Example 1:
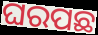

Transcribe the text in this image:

ଘରପଛ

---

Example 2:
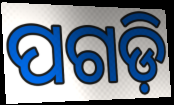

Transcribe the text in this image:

ପଗଡ଼ି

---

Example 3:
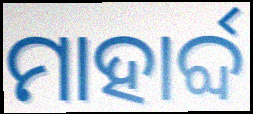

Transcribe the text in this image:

ମାହାର୍ବ୍ଦ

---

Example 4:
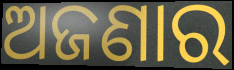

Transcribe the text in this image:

ଅଜଣାର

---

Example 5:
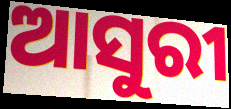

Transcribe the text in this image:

ଆସୁରୀ